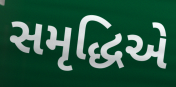
સમૃદ્ધિએ